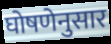
घोषणेनुसार